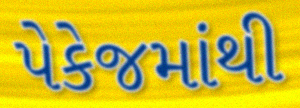
પેકેજમાંથી